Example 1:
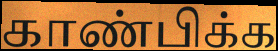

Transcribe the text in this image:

காண்பிக்க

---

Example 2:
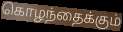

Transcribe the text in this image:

கொழந்தைக்கும்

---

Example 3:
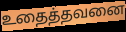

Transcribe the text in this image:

உதைத்தவனை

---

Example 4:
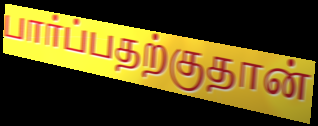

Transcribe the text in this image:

பார்ப்பதற்குதான்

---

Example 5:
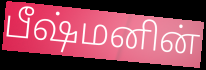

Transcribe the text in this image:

பீஷ்மனின்